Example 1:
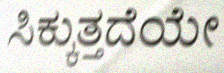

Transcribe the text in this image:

ಸಿಕ್ಕುತ್ತದೆಯೇ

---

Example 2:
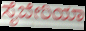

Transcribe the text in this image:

ಸೈಬೇರಿಯಾ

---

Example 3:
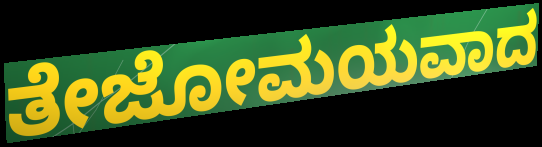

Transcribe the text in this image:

ತೇಜೋಮಯವಾದ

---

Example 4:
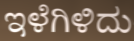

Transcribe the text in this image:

ಇಳೆಗಿಳಿದು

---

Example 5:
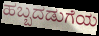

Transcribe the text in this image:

ಹಬ್ಬದಡುಗೆಯ